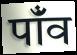
पांँव